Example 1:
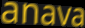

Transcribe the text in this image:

anava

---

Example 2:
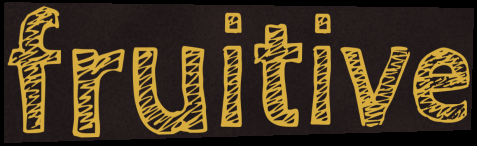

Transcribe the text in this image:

fruitive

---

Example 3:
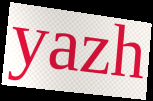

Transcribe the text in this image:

yazh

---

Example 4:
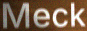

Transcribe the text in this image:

Meck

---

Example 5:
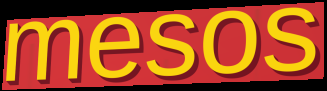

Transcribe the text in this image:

mesos